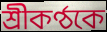
শ্রীকণ্ঠকে